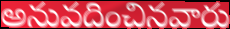
అనువదించినవారు